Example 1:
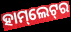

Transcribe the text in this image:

ହାମ୍‌ଲେଟ୍‌ର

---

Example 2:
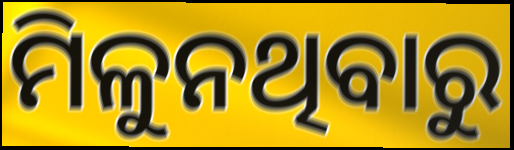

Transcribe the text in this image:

ମିଳୁନଥିବାରୁ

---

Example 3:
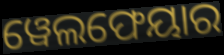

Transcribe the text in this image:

ୱେଲଫେୟାର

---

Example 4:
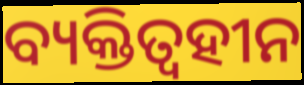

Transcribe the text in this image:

ବ୍ୟକ୍ତିତ୍ୱହୀନ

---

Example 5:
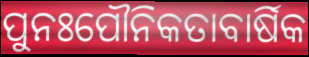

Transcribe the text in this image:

ପୁନଃପୌନିକତାବାର୍ଷିକ